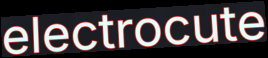
electrocute